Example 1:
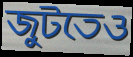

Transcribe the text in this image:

জুটতেও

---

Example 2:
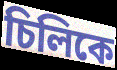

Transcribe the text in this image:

চিলিকে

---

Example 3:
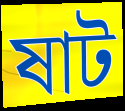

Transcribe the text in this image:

ষাট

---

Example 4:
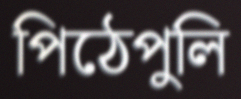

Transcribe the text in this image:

পিঠেপুলি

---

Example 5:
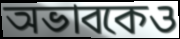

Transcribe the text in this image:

অভাবকেও